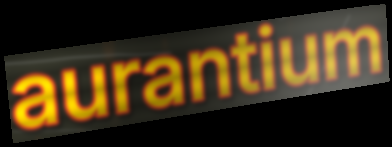
aurantium